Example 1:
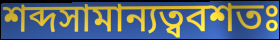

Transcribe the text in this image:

শব্দসামান্যত্ববশতঃ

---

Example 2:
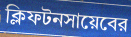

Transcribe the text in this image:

ক্লিফটনসায়েবের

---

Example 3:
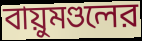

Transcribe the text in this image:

বায়ুমণ্ডলের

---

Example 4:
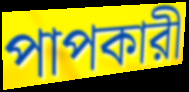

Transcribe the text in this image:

পাপকারী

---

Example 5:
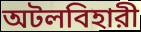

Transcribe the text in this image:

অটলবিহারী